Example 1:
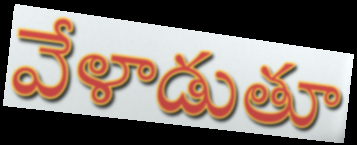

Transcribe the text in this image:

వేళాడుతూ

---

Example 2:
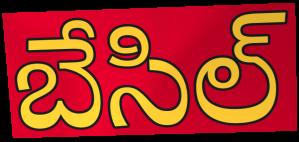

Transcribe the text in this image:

బేసిల్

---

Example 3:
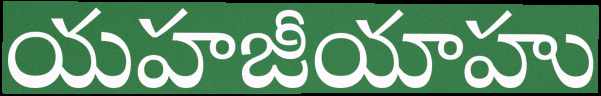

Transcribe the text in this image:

యహజీయాహు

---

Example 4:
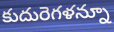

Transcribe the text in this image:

కుదురెగళన్నూ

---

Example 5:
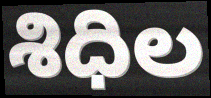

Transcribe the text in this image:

శిధిల